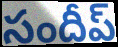
సందీప్